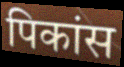
पिकांस